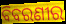
ବିବରଣୀର